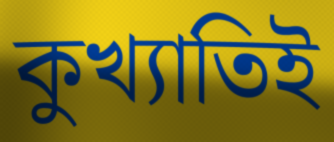
কুখ্যাতিই